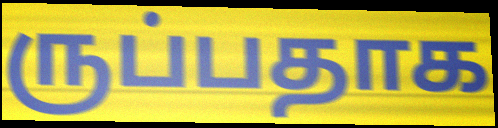
ருப்பதாக